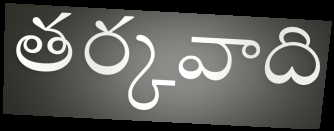
తర్కవాది